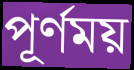
পূর্ণময়